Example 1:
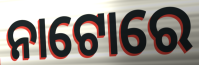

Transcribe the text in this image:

ନାଟୋରେ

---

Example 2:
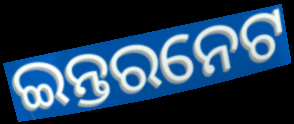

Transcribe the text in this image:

ଇନ୍ତରନେଟ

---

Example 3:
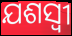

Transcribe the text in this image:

ଯଶସ୍ଵୀ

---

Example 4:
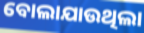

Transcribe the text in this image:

ବୋଲାଯାଉଥିଲା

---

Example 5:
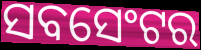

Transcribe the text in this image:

ସବସେଂଟର